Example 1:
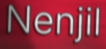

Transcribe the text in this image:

Nenjil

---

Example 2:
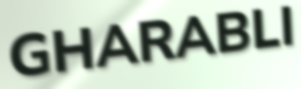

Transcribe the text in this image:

GHARABLI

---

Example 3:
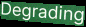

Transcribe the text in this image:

Degrading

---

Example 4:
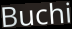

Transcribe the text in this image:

Buchi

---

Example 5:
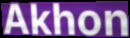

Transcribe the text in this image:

Akhon